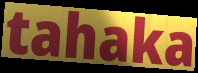
tahaka